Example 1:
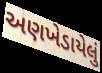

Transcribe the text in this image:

અણખેડાયેલું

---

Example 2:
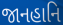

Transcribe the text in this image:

જાનહાનિ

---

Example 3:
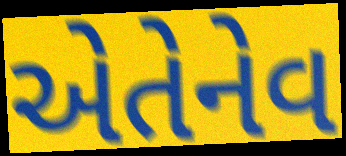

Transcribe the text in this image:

એતેનેવ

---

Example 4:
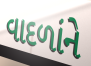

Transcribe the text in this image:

વાદળાંને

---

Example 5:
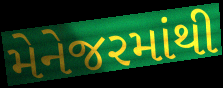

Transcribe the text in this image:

મેનેજરમાંથી